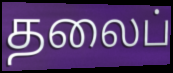
தலைப்